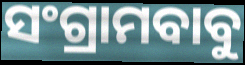
ସଂଗ୍ରାମବାବୁ